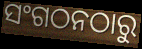
ସଂଗଠନଠାରୁ